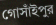
গোসাঁইপুর